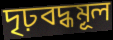
দৃঢ়বদ্ধমূল